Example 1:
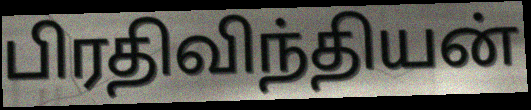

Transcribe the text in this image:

பிரதிவிந்தியன்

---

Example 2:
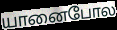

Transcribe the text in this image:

யானைபோல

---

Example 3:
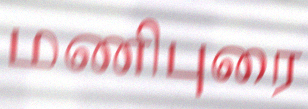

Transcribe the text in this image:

மணிபுரை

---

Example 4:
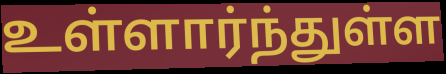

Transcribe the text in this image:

உள்ளார்ந்துள்ள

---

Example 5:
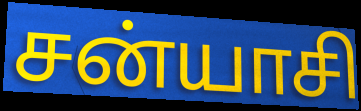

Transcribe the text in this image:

சன்யாசி